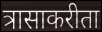
त्रासाकरीता